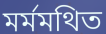
মর্মমথিত